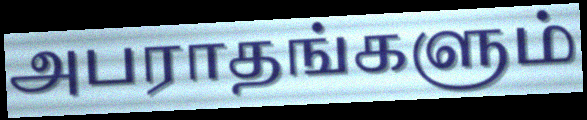
அபராதங்களும்